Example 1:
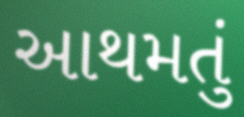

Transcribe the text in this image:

આથમતું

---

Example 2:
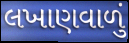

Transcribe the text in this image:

લખાણવાળું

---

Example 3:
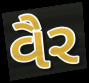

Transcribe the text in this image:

વૈર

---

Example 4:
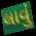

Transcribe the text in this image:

લાવું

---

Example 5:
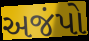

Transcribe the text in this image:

અજંપો